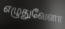
எழுதுவேனா